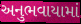
અનુભવાયામાં